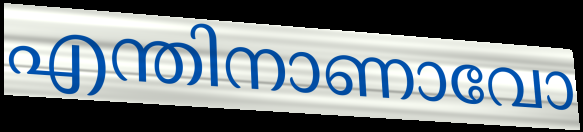
എന്തിനാണാവോ